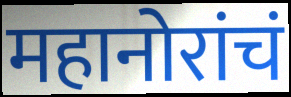
महानोरांचं